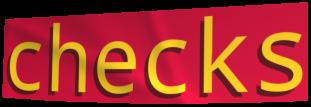
checks